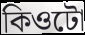
কিওটো